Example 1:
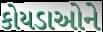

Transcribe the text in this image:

કોયડાઓને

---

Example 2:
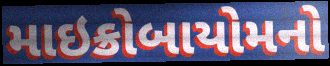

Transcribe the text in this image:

માઇક્રોબાયોમનો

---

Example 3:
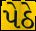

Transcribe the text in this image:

પેઠે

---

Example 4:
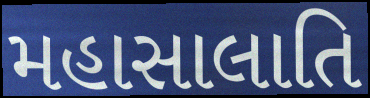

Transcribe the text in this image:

મહાસાલાતિ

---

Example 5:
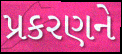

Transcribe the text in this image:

પ્રકરણને